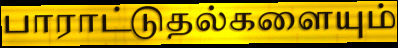
பாராட்டுதல்களையும்